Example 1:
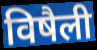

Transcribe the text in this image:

विषैली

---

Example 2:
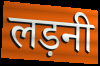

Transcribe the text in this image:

लड़नी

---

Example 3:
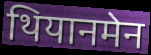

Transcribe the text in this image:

थियानमेन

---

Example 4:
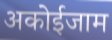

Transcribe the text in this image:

अकोईजाम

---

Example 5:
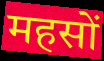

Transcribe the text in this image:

महसों